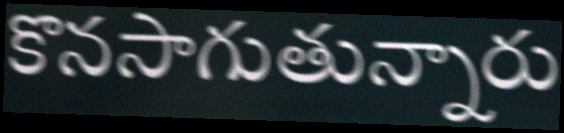
కొనసాగుతున్నారు